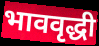
भाववृद्धी